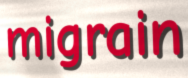
migrain